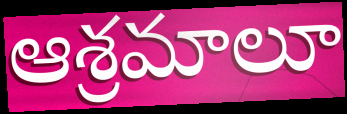
ఆశ్రమాలూ